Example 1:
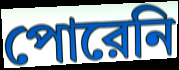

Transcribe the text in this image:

পোরেনি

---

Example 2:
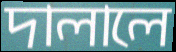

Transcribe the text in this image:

দালালে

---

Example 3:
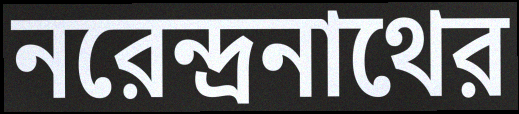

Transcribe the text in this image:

নরেন্দ্রনাথের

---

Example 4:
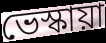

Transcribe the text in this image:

ভেস্কায়া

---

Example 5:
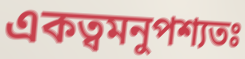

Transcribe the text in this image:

একত্বমনুপশ্যতঃ